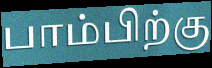
பாம்பிற்கு